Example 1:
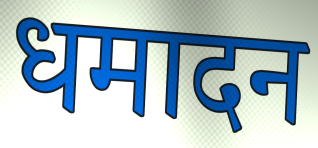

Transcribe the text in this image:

धमादन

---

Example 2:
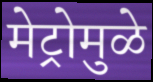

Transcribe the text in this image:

मेट्रोमुळे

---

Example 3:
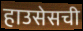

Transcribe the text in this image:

हाउसेसची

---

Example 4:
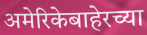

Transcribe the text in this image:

अमेरिकेबाहेरच्या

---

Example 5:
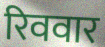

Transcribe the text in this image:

रिववार